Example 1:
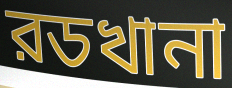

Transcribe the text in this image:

রডখানা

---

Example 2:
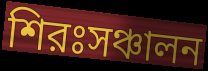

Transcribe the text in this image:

শিরঃসঞ্চালন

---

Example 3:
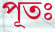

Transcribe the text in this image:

পূতঃ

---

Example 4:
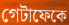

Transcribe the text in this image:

গেটাফেকে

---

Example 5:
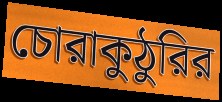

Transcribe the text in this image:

চোরাকুঠুরির